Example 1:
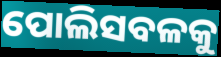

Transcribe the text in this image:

ପୋଲିସବଳକୁ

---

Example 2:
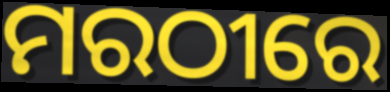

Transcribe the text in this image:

ମରଠୀରେ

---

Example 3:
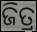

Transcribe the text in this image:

ଜିତ୍ର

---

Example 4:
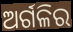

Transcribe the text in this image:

ଅର୍ଗଳିର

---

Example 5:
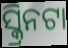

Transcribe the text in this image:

ସ୍କ୍ରିନଟା